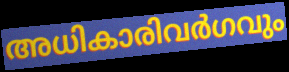
അധികാരിവർഗവും